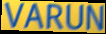
VARUN